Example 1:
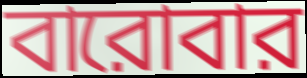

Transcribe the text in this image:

বারোবার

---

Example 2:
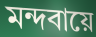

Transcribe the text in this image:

মন্দবায়ে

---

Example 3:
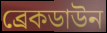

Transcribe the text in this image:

ব্রেকডাউন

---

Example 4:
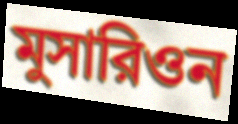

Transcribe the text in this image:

মুসারিওন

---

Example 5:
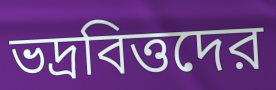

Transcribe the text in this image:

ভদ্রবিত্তদের